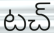
టచ్